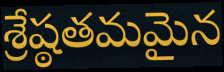
శ్రేష్ఠతమమైన